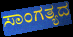
ಸಾಂಗತ್ಯದ